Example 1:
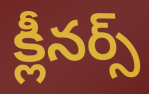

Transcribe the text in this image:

క్లీనర్స్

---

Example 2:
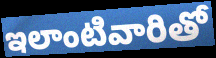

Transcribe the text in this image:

ఇలాంటివారితో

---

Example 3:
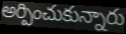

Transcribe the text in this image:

అర్పించుకున్నారు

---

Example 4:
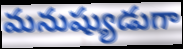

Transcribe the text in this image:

మనుష్యుడుగా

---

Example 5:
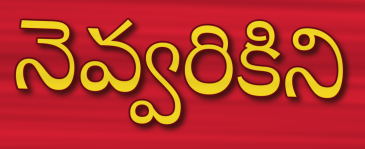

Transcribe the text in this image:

నెవ్వరికిని